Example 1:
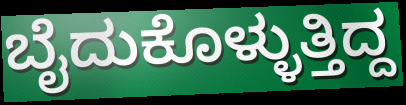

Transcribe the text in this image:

ಬೈದುಕೊಳ್ಳುತ್ತಿದ್ದ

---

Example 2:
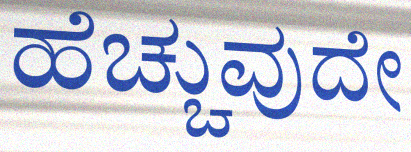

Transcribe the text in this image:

ಹೆಚ್ಚುವುದೇ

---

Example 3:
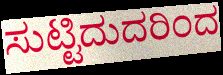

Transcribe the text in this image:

ಸುಟ್ಟಿದುದರಿಂದ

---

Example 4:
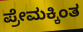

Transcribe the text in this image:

ಪ್ರೇಮಕ್ಕಿಂತ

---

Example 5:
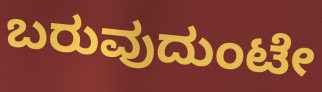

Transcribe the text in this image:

ಬರುವುದುಂಟೇ